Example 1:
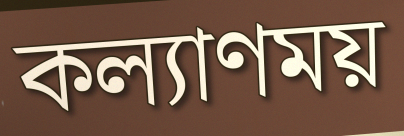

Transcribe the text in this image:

কল্যাণময়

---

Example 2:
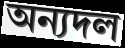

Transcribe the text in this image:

অন্যদল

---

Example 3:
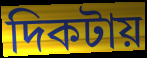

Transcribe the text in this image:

দিকটায়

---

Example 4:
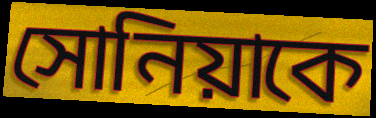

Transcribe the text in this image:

সোনিয়াকে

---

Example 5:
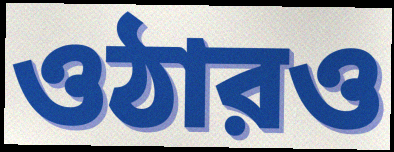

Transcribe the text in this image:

ওঠারও